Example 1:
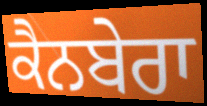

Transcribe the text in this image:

ਕੈਨਬੇਰਾ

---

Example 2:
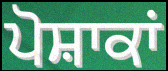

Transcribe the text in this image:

ਪੋਸ਼ਾਕਾਂ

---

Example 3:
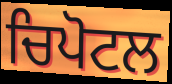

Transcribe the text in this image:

ਚਿਪੋਟਲ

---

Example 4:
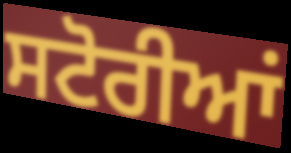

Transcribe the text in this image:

ਸਟੋਰੀਆਂ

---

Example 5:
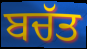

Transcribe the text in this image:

ਬਚੱਤ